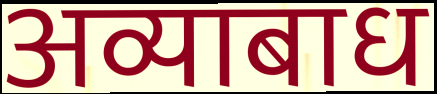
अव्याबाध